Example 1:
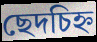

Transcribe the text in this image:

ছেদচিহ্ন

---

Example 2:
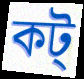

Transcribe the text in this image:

কট্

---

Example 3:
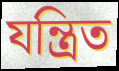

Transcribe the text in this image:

যন্ত্রিত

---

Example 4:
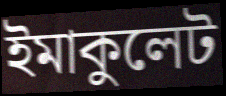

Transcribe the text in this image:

ইমাকুলেট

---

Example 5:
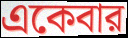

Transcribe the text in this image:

একেবার